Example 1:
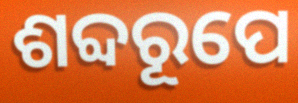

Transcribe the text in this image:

ଶବ୍ଦରୂପେ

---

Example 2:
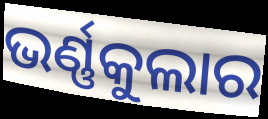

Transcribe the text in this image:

ଭର୍ଣ୍ଣକୁଲାର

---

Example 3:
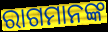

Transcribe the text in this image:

ରାଗମାନଙ୍କ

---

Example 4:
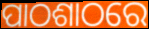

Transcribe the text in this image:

ପାଠଶାଠରେ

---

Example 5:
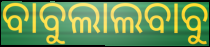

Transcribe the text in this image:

ବାବୁଲାଲବାବୁ